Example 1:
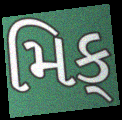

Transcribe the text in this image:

મિક્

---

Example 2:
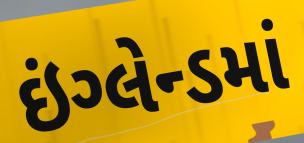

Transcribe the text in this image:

ઇંગ્લેન્ડમાં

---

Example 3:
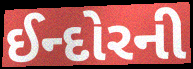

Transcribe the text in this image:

ઈન્દોરની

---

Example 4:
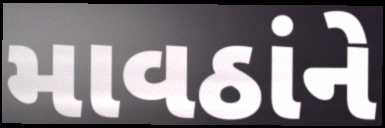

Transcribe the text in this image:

માવઠાંને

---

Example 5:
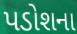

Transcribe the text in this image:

પડોશના